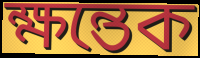
ক্ষন্তেক